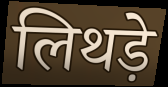
लिथड़े